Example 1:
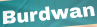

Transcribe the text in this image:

Burdwan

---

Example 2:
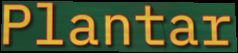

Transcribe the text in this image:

Plantar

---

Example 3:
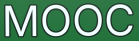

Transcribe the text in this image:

MOOC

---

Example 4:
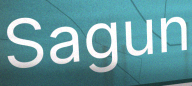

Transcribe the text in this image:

Sagun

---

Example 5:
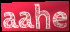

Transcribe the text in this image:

aahe